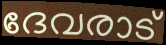
ദേവരാട്